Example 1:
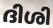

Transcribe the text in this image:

ദിശി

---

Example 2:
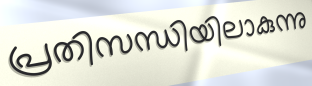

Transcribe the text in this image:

പ്രതിസന്ധിയിലാകുന്നു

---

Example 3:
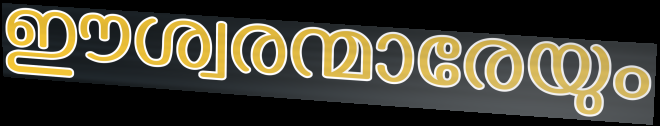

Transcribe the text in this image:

ഈശ്വരന്മാരേയും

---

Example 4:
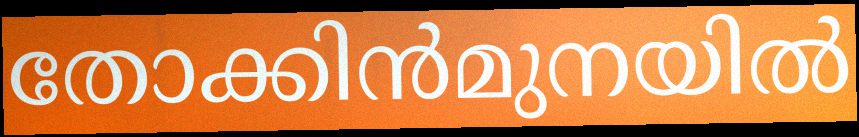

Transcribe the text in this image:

തോക്കിൻമുനയിൽ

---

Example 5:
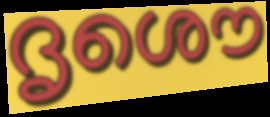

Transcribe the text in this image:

ദൃശൌ